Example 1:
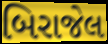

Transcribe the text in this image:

બિરાજેલ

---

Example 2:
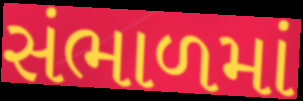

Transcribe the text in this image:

સંભાળમાં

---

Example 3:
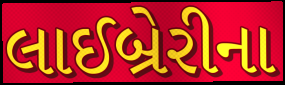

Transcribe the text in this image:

લાઈબ્રેરીના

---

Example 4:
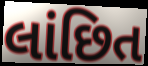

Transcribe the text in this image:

લાંછિત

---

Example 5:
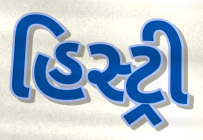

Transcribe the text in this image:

હિસ્ટ્રી